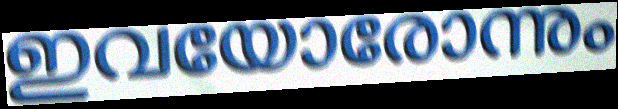
ഇവയോരോന്നും